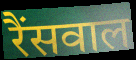
रैंसवाल